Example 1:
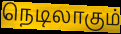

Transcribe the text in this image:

நெடிலாகும்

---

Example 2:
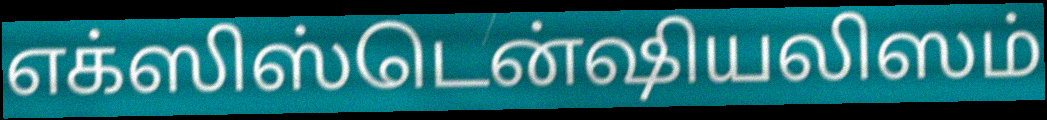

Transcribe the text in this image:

எக்ஸிஸ்டென்ஷியலிஸம்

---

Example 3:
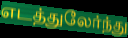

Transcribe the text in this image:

எடத்துலேர்ந்து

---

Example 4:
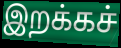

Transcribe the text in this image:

இறக்கச்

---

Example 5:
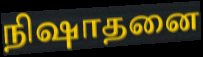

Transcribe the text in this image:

நிஷாதனை